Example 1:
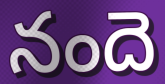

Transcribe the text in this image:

నందె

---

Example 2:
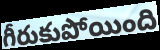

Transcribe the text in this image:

గీరుకుపోయింది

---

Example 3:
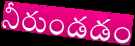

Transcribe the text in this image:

నీరుండడం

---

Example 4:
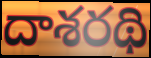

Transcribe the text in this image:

దాశరథి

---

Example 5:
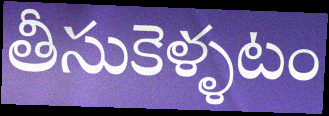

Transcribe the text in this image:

తీసుకెళ్ళటం